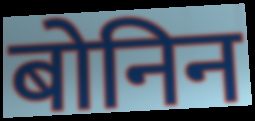
बोनिन